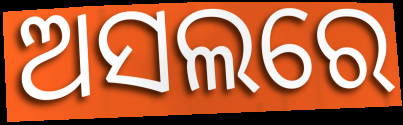
ଅସଲରେ